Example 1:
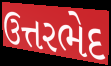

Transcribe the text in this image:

ઉત્તરભેદ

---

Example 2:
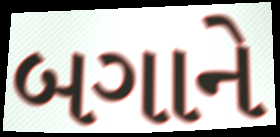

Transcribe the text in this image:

બગાને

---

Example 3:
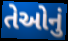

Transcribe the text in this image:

તેઓનું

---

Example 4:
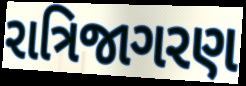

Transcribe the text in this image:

રાત્રિજાગરણ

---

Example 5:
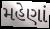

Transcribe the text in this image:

મહેણાં